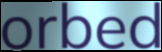
orbed